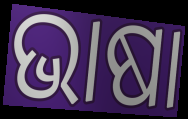
ଭାଷା